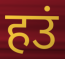
हउं